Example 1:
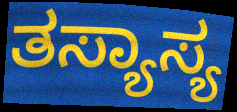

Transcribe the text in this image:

ತಸ್ಯಾಸ್ಯ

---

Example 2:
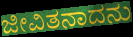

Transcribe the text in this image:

ಜೀವಿತನಾದನು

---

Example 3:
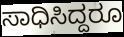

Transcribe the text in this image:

ಸಾಧಿಸಿದ್ದರೂ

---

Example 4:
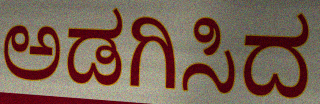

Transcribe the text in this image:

ಅಡಗಿಸಿದ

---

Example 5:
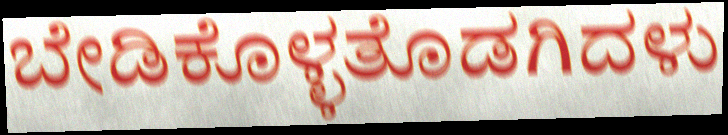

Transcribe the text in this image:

ಬೇಡಿಕೊಳ್ಳತೊಡಗಿದಳು